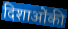
दिशाओंकी